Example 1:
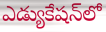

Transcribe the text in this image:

ఎడ్యుకేషన్‌లో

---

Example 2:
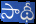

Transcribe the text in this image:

సాథీ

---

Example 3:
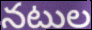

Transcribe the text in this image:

నటుల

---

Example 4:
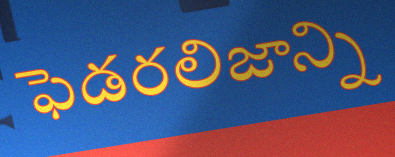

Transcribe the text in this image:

ఫెడరలిజాన్ని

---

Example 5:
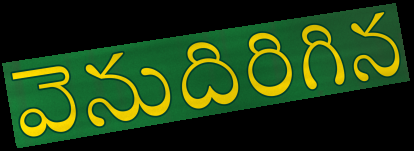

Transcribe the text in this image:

వెనుదిరిగిన